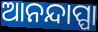
ଆନନ୍ଦାପ୍ପା